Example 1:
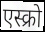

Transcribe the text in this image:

एस्क्रो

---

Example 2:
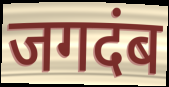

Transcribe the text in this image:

जगदंब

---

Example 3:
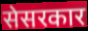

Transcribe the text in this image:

सेसरकार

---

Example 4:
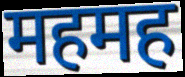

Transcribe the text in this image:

महमह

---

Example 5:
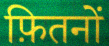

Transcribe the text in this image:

फ़ितनों